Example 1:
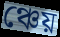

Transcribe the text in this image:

ঞ্চেয়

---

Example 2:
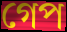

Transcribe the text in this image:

গেপ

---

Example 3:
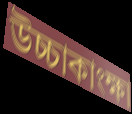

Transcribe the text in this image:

উচ্চাকাংক্ষা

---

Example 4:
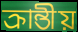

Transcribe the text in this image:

ক্ৰান্তীয়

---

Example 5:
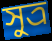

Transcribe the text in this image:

সুত্ৰ